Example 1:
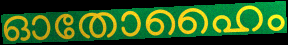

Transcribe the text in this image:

ഓതോഹൈം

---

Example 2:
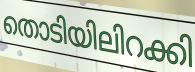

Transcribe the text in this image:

തൊടിയിലിറക്കി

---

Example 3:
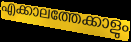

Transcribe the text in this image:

എക്കാലത്തേക്കാളും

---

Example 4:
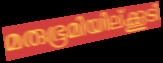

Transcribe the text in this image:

മരുഭൂമിയില്ക്കൂടി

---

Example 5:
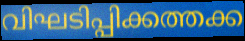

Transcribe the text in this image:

വിഘടിപ്പിക്കത്തക്ക